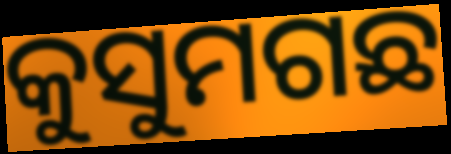
କୁସୁମଗଛ